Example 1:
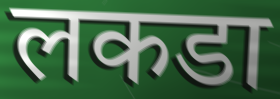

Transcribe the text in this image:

लकडा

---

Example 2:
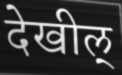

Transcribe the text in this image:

देखील्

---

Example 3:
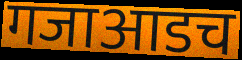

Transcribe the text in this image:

गजाआडच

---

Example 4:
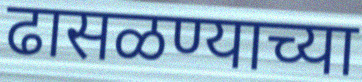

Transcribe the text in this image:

ढासळण्याच्या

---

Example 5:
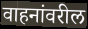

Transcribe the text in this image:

वाहनांवरील